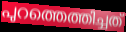
പുറത്തെത്തിച്ചത്